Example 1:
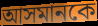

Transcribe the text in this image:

আসমানকে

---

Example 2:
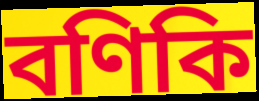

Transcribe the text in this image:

বণিকি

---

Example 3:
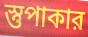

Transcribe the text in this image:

স্তুপাকার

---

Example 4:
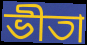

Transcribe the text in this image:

ভীতা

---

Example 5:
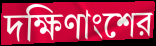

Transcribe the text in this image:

দক্ষিণাংশের